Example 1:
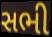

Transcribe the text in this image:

સભી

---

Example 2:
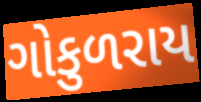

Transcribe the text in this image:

ગોકુળરાય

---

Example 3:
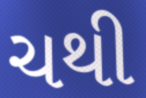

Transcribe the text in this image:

ચથી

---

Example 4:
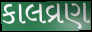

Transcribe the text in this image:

કાલવ્રણ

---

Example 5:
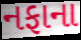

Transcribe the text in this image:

નફાના